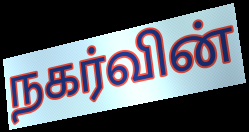
நகர்வின்